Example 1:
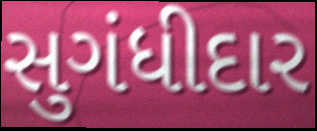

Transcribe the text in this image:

સુગંધીદાર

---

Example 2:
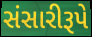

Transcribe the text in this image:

સંસારીરૂપે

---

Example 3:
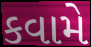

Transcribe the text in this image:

કવામે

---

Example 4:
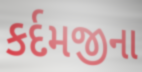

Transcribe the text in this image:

કર્દમજીના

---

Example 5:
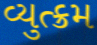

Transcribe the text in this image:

વ્યુત્ક્રમ